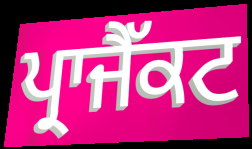
ਪ੍ਰਾਜੈੱਕਟ